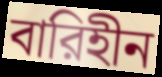
বারিহীন